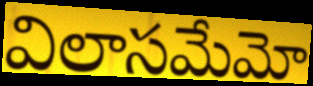
విలాసమేమో